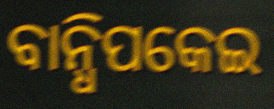
ବାନ୍ଧିପକେଇ